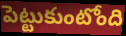
పెట్టుకుంటోంది